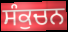
ਸੰਕੁਚਨ